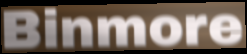
Binmore